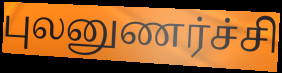
புலனுணர்ச்சி